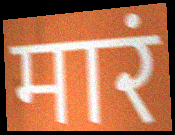
मारं